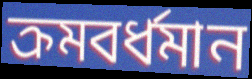
ক্রমবর্ধমান